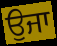
ਉਜਾ